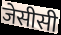
जेसीसी